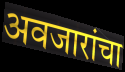
अवजारांचा